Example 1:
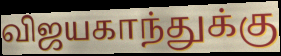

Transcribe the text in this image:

விஜயகாந்துக்கு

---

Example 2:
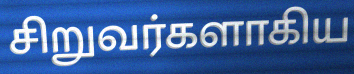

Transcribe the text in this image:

சிறுவர்களாகிய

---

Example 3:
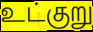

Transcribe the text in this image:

உட்குறு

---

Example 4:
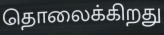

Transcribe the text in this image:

தொலைக்கிறது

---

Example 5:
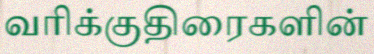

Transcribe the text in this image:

வரிக்குதிரைகளின்